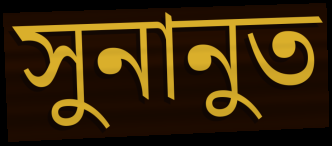
সুনানুত